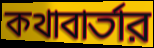
কথাবার্তার